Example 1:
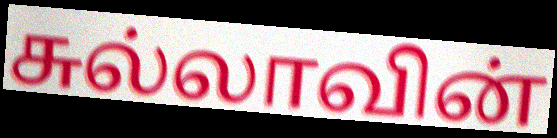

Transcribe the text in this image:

சுல்லாவின்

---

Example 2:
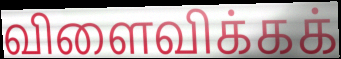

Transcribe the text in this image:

விளைவிக்கக்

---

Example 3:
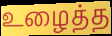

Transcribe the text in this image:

உழைத்த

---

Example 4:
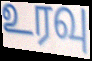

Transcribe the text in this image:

உரவு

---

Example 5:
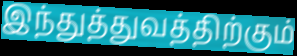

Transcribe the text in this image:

இந்துத்துவத்திற்கும்